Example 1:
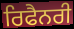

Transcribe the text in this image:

ਰਿਫੈਨਰੀ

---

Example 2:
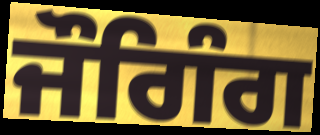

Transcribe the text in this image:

ਜੌਗਿੰਗ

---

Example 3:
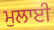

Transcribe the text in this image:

ਮੁਲਾਈ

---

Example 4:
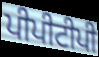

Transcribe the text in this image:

ਪੀਪੀਟੀਪੀ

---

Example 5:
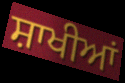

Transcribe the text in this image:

ਸ਼ਾਖੀਆਂ